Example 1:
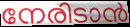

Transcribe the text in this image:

നേരിടാൻ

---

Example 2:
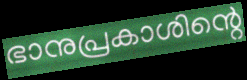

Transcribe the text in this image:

ഭാനുപ്രകാശിന്റെ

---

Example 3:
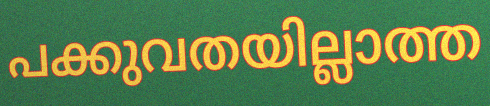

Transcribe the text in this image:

പക്കുവതയില്ലാത്ത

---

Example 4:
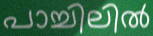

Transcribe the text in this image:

പാച്ചിലിൽ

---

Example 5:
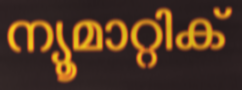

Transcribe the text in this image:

ന്യൂമാറ്റിക്